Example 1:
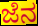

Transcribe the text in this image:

ಜೆನ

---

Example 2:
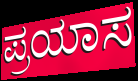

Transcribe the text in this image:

ಪ್ರಯಾಸ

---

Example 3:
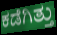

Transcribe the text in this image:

ಕಡೆಗಿತ್ತು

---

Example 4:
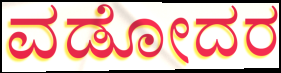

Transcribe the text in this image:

ವಡೋದರ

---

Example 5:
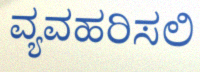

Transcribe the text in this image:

ವ್ಯವಹರಿಸಲಿ